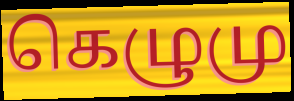
கெழுமு